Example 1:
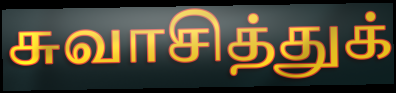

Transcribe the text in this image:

சுவாசித்துக்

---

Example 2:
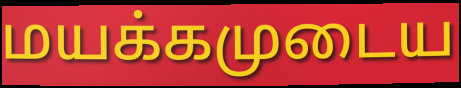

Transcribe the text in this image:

மயக்கமுடைய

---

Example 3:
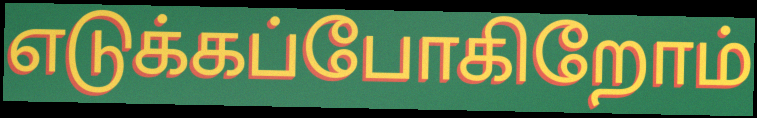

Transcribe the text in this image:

எடுக்கப்போகிறோம்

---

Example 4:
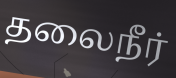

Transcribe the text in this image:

தலைநீர்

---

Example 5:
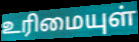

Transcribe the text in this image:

உரிமையுள்